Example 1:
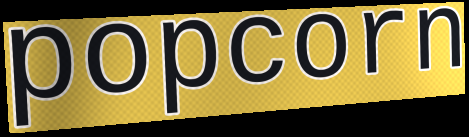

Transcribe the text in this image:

popcorn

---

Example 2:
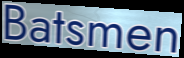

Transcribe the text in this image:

Batsmen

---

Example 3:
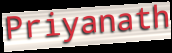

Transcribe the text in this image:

Priyanath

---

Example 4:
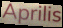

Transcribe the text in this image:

Aprilis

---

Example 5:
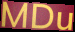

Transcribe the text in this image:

MDu